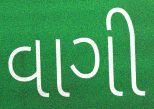
વાગી